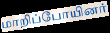
மாறிப்போயினர்